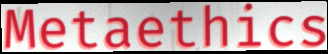
Metaethics